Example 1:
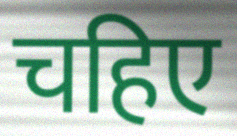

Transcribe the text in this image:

चहिए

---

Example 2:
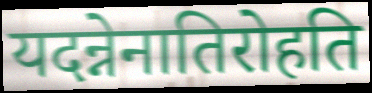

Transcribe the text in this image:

यदन्नेनातिरोहति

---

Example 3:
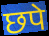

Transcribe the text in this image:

छपे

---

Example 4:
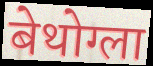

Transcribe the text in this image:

बेथोग्ला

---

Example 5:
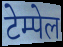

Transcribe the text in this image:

टेम्पेल